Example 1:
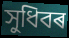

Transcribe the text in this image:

সুধিবৰ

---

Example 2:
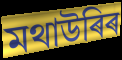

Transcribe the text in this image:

মথাউৰিৰ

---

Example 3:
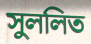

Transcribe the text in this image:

সুললিত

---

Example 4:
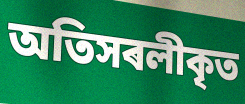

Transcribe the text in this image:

অতিসৰলীকৃত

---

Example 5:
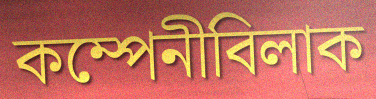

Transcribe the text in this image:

কম্পেনীবিলাক